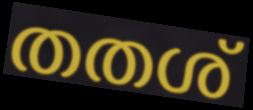
തതശ്